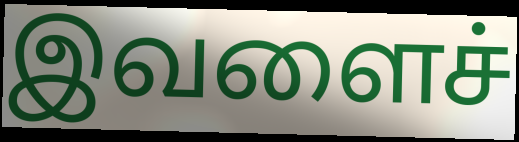
இவளைச்